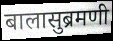
बालासुब्रमणी